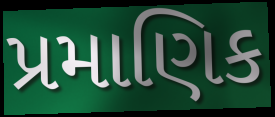
પ્રમાણિક